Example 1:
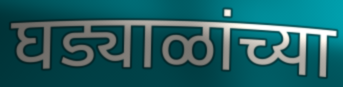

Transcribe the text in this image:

घड्याळांच्या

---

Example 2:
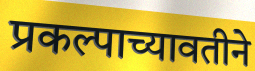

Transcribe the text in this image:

प्रकल्पाच्यावतीने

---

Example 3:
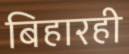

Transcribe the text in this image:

बिहारही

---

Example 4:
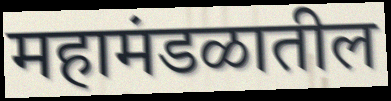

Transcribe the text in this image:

महामंडळातील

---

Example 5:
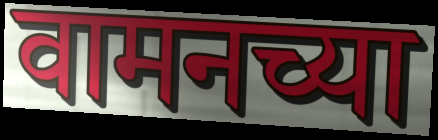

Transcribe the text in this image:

वामनच्या